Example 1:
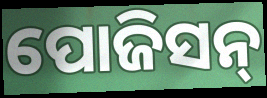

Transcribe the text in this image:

ପୋଜିସନ୍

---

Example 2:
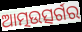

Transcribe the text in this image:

ଆତ୍ମଉତ୍ସର୍ଗର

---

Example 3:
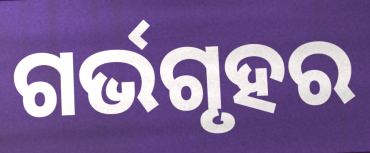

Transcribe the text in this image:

ଗର୍ଭଗୃହର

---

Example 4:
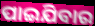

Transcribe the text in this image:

ପାଇଯିବାର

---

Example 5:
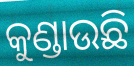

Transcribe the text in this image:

କୁଣ୍ଡାଉଛି